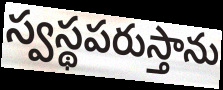
స్వస్థపరుస్తాను